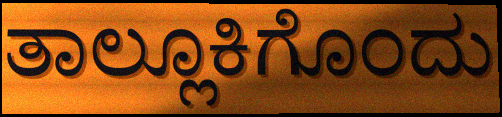
ತಾಲ್ಲೂಕಿಗೊಂದು